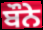
ਬੌਨੇ